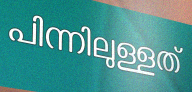
പിന്നിലുള്ളത്